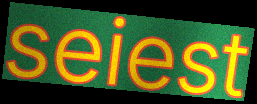
seiest